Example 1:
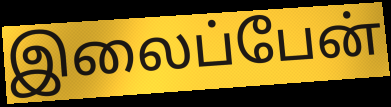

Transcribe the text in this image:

இலைப்பேன்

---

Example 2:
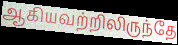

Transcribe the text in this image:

ஆகியவற்றிலிருந்தே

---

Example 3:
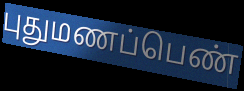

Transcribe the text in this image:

புதுமணப்பெண்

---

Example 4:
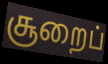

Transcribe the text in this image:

சூறைப்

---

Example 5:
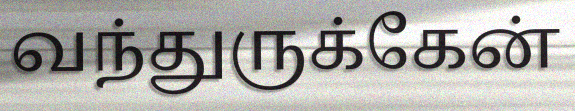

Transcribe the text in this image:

வந்துருக்கேன்